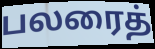
பலரைத்